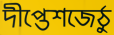
দীপ্তেশজেঠু